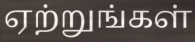
ஏற்றுங்கள்